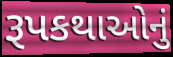
રૂપકથાઓનું